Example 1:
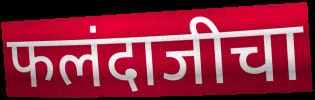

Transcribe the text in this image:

फलंदाजीचा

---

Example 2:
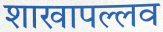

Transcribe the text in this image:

शाखापल्लव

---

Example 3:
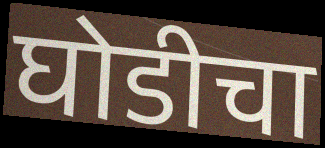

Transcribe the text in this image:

घोडीचा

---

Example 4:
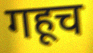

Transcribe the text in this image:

गहूच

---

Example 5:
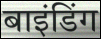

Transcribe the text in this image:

बाइंडिंग